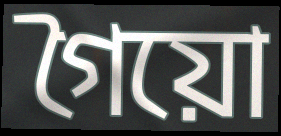
গৈয়ো